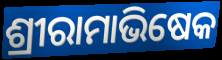
ଶ୍ରୀରାମାଭିଷେକ